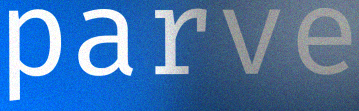
parve